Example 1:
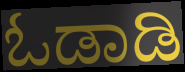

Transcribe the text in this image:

ಓಡಾಡಿ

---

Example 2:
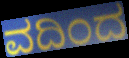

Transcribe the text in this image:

ವದಿಂದ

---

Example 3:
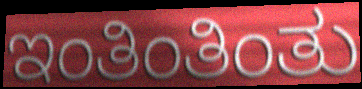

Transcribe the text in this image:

ಇಂತಿಂತಿಂತು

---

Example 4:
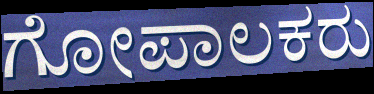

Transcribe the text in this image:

ಗೋಪಾಲಕರು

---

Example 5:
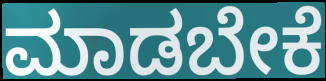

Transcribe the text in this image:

ಮಾಡಬೇಕೆ